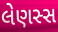
લેણસ્સ